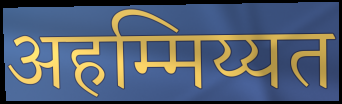
अहम्मिय्यत